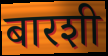
बारशी